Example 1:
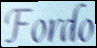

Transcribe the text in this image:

Fordo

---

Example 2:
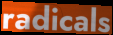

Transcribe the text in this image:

radicals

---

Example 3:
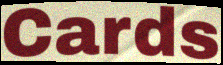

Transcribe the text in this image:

Cards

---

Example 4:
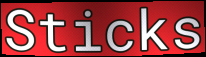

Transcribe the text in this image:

Sticks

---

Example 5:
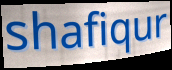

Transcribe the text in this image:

shafiqur